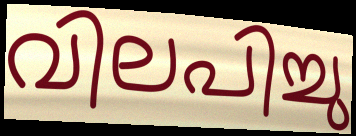
വിലപിച്ചു